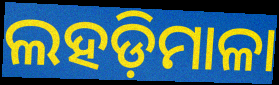
ଲହଡ଼ିମାଳା